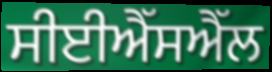
ਸੀਈਐੱਸਐੱਲ